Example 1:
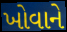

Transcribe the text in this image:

ખોવાને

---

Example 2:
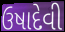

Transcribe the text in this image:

ઉષાદેવી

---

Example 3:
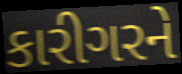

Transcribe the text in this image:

કારીગરને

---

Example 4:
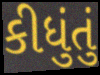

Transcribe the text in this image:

કીધુંતું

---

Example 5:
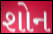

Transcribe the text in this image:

શોન